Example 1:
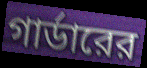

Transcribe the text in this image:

গার্ডারের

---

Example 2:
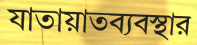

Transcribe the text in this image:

যাতায়াতব্যবস্থার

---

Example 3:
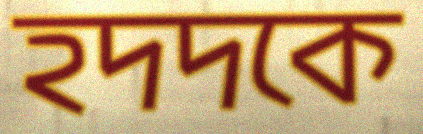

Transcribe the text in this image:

হদদকে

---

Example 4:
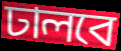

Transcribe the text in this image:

ঢালবে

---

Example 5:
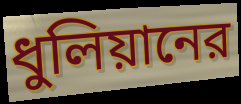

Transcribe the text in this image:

ধুলিয়ানের